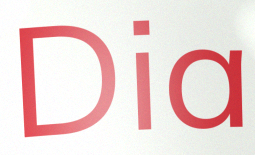
Dia